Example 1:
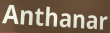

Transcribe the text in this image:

Anthanar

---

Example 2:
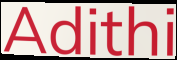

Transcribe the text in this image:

Adithi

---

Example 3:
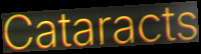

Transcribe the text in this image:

Cataracts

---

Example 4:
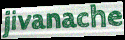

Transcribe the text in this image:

jivanache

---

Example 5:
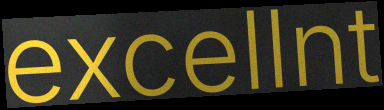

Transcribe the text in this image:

excellnt